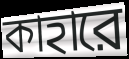
কাহারে